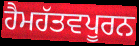
ਹੈਮਹੱਤਵਪੂਰਨ